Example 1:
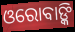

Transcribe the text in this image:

ଓରୋବାଙ୍କି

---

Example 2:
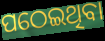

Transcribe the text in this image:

ପଠେଇଥିବା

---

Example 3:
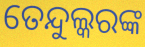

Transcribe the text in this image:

ତେନ୍ଦୁଲ୍କରଙ୍କ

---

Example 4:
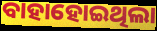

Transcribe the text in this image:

ବାହାହୋଇଥିଲା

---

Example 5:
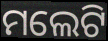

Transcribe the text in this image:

ମଲେଟି